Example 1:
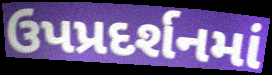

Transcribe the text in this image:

ઉપપ્રદર્શનમાં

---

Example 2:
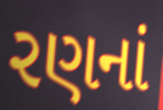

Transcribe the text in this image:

રણનાં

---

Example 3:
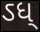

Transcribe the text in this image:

ઽધ્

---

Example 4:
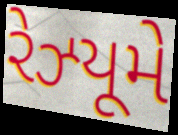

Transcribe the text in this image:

રેઝ્યૂમે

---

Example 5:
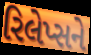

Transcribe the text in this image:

રિલેપ્સને